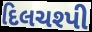
દિલચશ્પી